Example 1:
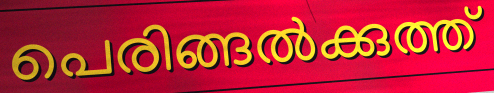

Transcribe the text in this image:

പെരിങ്ങൽക്കുത്ത്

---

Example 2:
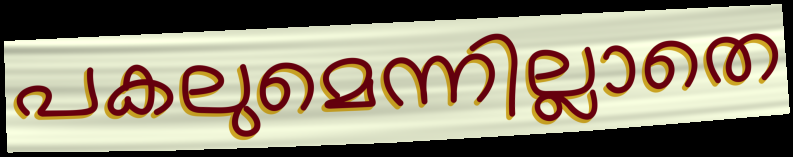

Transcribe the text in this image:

പകലുമെന്നില്ലാതെ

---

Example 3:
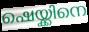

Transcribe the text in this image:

ഷെയ്ക്കിനെ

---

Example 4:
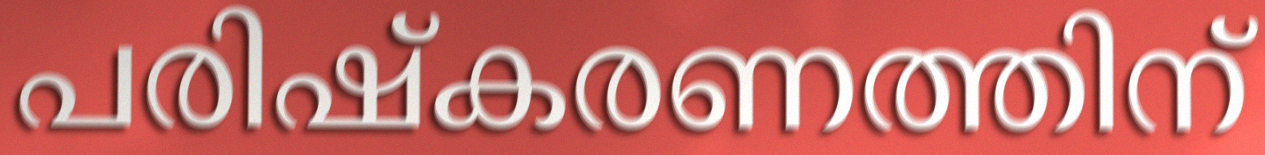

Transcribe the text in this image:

പരിഷ്കരണത്തിന്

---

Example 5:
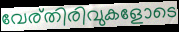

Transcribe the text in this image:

വേര്തിരിവുകളോടെ